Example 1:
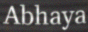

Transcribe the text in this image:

Abhaya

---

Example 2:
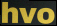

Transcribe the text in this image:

hvo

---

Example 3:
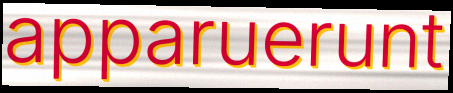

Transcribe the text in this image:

apparuerunt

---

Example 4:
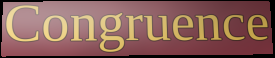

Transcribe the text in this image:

Congruence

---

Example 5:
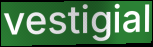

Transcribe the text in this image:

vestigial